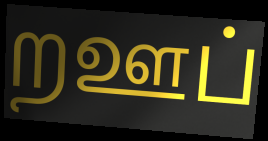
றஊப்